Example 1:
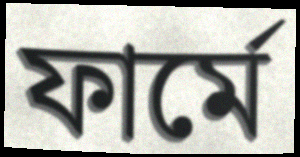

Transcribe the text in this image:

ফার্মে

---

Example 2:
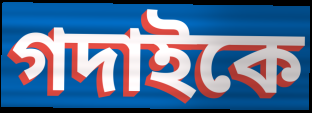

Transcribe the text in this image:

গদাইকে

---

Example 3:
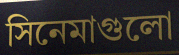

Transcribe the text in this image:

সিনেমাগুলো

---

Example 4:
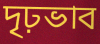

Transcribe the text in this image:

দৃঢ়ভাব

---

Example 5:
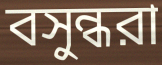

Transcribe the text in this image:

বসুন্ধরা